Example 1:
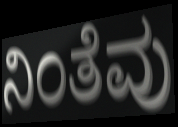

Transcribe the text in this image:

ನಿಂತೆವು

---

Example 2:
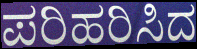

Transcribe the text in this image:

ಪರಿಹರಿಸಿದ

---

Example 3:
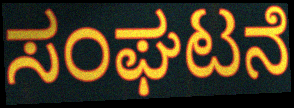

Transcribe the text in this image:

ಸಂಘಟನೆ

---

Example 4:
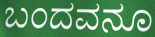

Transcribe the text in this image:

ಬಂದವನೂ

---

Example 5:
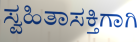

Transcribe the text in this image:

ಸ್ವಹಿತಾಸಕ್ತಿಗಾಗಿ